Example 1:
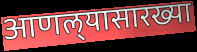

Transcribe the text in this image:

आणल्यासारख्या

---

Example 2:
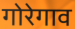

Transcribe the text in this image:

गोरेगाव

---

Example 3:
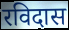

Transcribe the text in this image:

रविदास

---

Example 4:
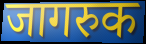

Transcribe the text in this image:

जागरुक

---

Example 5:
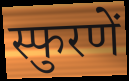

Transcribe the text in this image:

स्फुरणें